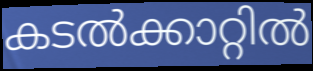
കടൽക്കാറ്റിൽ